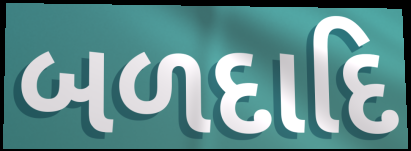
બળદાદિ